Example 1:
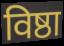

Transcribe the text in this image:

विष्ठा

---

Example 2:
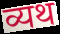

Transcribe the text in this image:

व्यथ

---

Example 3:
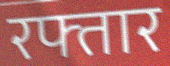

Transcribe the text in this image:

रफ्‍तार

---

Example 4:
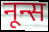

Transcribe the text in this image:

नून्स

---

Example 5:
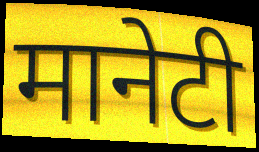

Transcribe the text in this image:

मानेटी